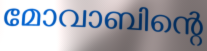
മോവാബിന്റെ